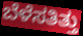
ಬೆಳೆಸತಿತ್ತು